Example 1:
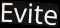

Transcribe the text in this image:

Evite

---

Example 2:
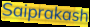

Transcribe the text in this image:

Saiprakash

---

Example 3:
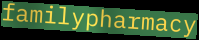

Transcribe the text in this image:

familypharmacy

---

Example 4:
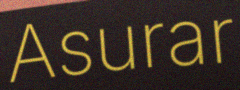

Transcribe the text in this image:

Asurar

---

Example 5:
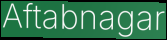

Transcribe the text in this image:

Aftabnagar